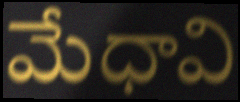
మేధావి